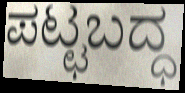
ಪಟ್ಟಬದ್ಧ